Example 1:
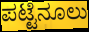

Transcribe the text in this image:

ಪಟ್ಟೆನೂಲು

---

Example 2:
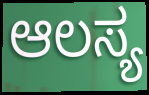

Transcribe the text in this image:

ಆಲಸ್ಯ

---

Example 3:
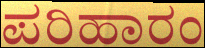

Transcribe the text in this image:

ಪರಿಹಾರಂ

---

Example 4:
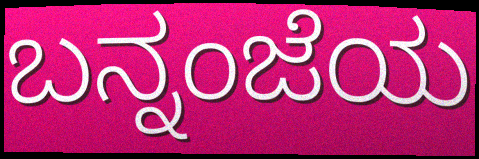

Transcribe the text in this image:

ಬನ್ನಂಜೆಯ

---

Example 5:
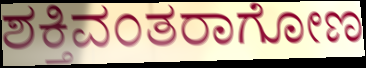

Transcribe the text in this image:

ಶಕ್ತಿವಂತರಾಗೋಣ